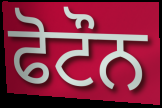
ਫੋਟੌਨ